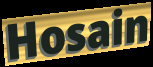
Hosain